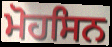
ਮੋਹਸਿਨ